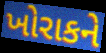
ખોરાકને